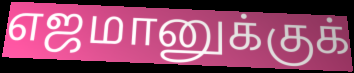
எஜமானுக்குக்